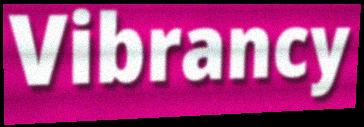
Vibrancy